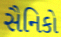
સૈનિકો